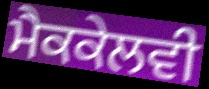
ਮੈਕਕੇਲਵੀ